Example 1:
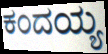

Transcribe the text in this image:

ಕಂದಯ್ಯ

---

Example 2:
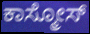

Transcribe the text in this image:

ಕಾಸ್ಮೋಸ್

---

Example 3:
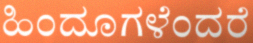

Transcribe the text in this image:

ಹಿಂದೂಗಳೆಂದರೆ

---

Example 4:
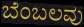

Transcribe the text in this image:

ಬೆಂಬಲವು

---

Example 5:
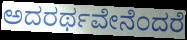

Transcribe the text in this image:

ಅದರರ್ಥವೇನೆಂದರೆ